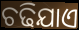
ଚଢିଯାଏ